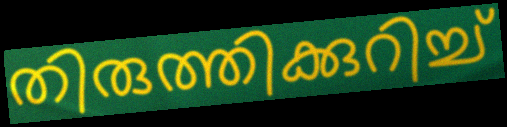
തിരുത്തിക്കുറിച്ച്